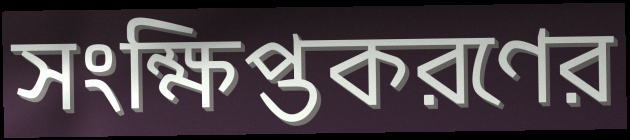
সংক্ষিপ্তকরণের